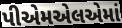
પીએમએલએમાં